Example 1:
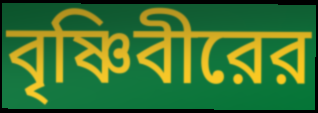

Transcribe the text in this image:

বৃষ্ণিবীরের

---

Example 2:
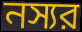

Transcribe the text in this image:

নস্যর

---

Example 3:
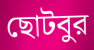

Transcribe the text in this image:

ছোটবুর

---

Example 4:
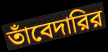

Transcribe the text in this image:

তাঁবেদারির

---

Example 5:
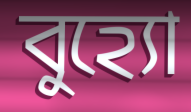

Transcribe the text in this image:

বুহ্যো